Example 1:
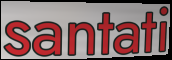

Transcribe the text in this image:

santati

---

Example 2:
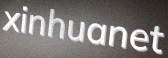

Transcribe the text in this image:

xinhuanet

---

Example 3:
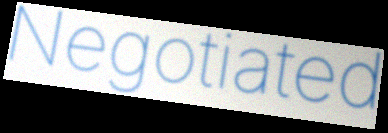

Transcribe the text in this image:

Negotiated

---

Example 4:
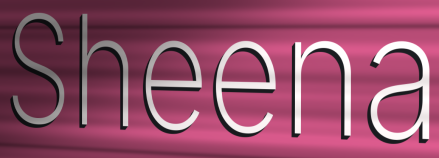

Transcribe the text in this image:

Sheena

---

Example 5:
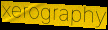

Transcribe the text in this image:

xerography